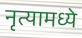
नृत्यामध्ये